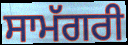
ਸਾਮੱਗਰੀ